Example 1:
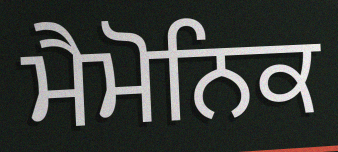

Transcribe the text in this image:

ਮੈਮੋਨਿਕ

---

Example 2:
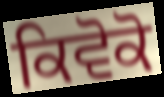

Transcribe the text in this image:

ਕਿਵੋਕੋ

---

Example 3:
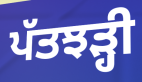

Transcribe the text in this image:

ਪੱਤਝੜ੍ਹੀ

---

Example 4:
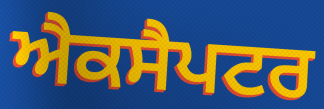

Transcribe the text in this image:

ਐਕਸੈਪਟਰ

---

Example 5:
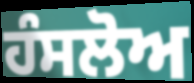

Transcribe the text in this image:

ਹੰਸਲੋਅ